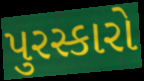
પુરસ્કારો